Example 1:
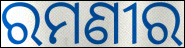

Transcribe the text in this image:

ରମଣୀର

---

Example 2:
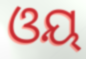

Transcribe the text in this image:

ଓୟ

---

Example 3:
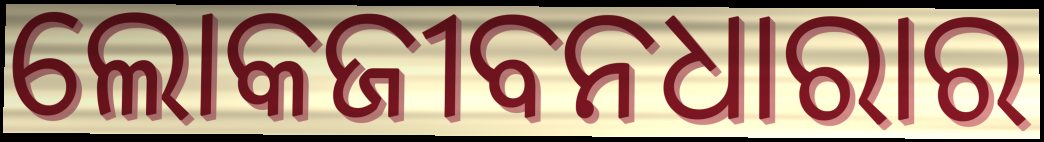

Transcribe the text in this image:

ଲୋକଜୀବନଧାରାର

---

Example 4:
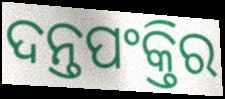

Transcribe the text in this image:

ଦନ୍ତପଂକ୍ତିର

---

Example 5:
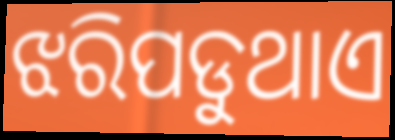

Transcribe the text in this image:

ଝରିପଡୁଥାଏ